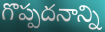
గొప్పదనాన్ని